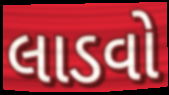
લાડવો